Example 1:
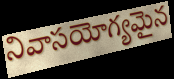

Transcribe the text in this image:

నివాసయోగ్యమైన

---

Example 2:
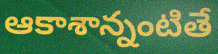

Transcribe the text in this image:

ఆకాశాన్నంటితే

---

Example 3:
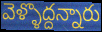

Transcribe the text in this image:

వెళ్ళొద్దన్నారు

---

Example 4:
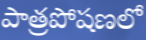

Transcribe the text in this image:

పాత్రపోషణలో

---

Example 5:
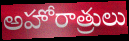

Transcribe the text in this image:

అహోరాత్రులు